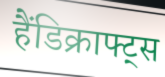
हैंडिक्राफ्ट्स